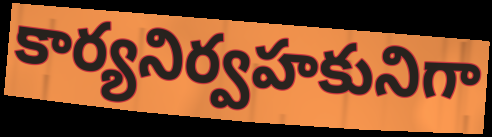
కార్యనిర్వహకునిగా